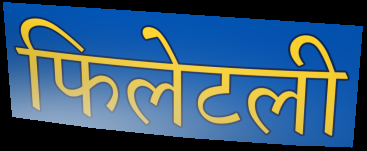
फिलेटली